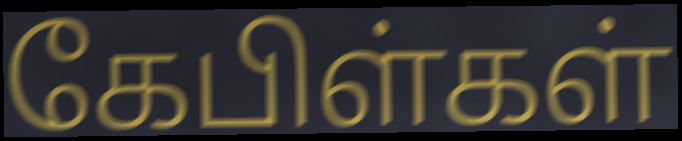
கேபிள்கள்